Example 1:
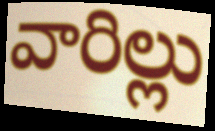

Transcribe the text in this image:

వారిల్లు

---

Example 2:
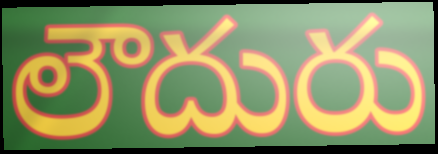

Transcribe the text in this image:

లౌదురు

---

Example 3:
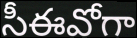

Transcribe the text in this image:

సీఈవోగా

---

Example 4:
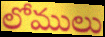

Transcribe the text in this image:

లోములు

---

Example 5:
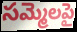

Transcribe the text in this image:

సమ్మెలపై